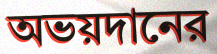
অভয়দানের